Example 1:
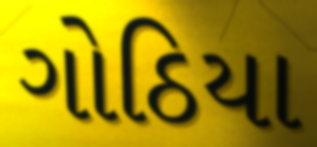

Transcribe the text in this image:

ગોઠિયા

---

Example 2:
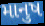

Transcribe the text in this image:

માનુષ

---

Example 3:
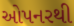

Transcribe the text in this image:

ઓપનરથી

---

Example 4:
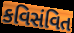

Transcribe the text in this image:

કવિસંવિત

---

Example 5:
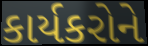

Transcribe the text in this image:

કાર્યકરોને